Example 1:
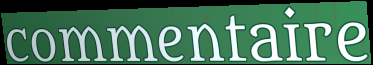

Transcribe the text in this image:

commentaire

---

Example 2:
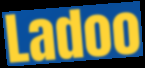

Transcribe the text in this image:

Ladoo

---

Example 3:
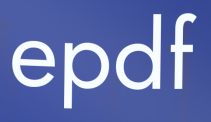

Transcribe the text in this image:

epdf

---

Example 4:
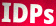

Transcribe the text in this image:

IDPs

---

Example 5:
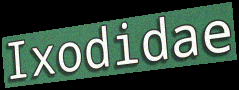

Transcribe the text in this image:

Ixodidae